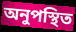
অনুপস্থিত